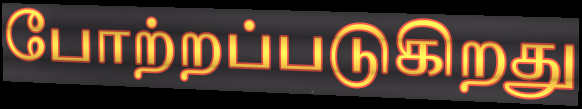
போற்றப்படுகிறது